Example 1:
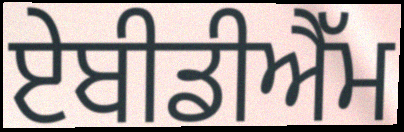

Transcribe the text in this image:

ਏਬੀਡੀਐੱਮ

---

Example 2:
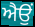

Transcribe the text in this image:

ਐਉਂ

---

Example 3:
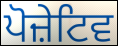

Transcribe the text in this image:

ਪੋਜ਼ੇਟਿਵ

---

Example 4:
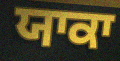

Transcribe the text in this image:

ਯਾਕਾ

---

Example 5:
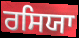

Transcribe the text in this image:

ਰਸਿਯਾ